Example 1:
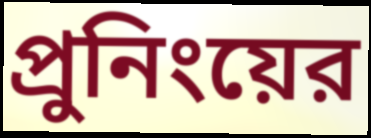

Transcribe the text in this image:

প্রুনিংয়ের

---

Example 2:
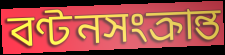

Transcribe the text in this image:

বণ্টনসংক্রান্ত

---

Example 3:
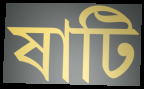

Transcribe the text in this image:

ষাটি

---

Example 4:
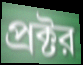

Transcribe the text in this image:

প্রক্টর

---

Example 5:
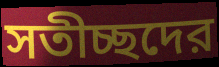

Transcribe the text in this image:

সতীচ্ছদের